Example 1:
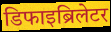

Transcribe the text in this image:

डिफाइब्रिलेटर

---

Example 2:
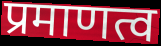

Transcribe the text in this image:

प्रमाणत्व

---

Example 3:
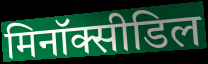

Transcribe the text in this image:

मिनॉक्सीडिल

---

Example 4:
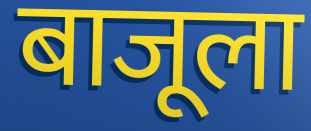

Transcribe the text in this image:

बाजूला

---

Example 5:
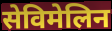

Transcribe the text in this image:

सेविमेलिन